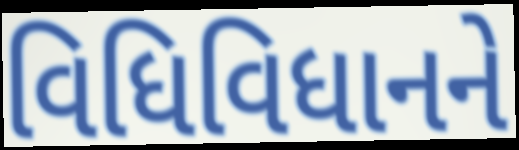
વિધિવિધાનને